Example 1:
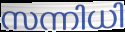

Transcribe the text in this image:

സന്നിധി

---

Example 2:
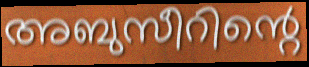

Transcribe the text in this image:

അബുസീറിന്റെ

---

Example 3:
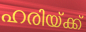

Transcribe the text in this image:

ഹരിയ്‌ക്ക്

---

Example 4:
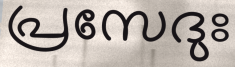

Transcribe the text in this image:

പ്രസേദുഃ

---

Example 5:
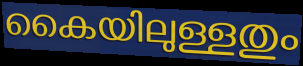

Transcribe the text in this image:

കൈയിലുള്ളതും